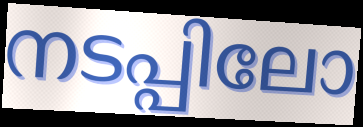
നടപ്പിലോ